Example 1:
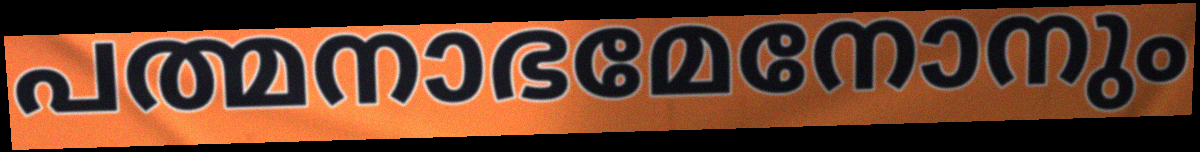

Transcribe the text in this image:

പത്മനാഭമേനോനും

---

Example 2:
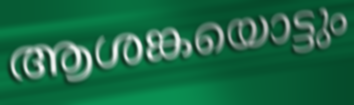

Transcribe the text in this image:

ആശങ്കയൊട്ടും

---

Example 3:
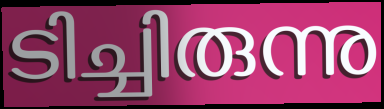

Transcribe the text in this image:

ടിച്ചിരുന്നു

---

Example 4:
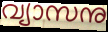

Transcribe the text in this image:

വ്യാസനു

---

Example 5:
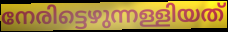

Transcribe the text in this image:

നേരിട്ടെഴുന്നള്ളിയത്